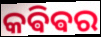
କଵିଵର